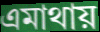
এমাথায়